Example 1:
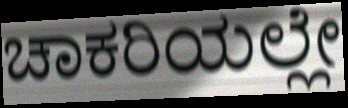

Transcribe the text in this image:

ಚಾಕರಿಯಲ್ಲೇ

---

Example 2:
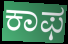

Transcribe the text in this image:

ಕಾಫ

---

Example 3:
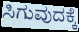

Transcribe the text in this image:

ಸಿಗುವುದಕ್ಕೆ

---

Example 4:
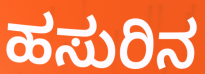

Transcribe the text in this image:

ಹಸುರಿನ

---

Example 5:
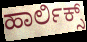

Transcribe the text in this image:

ಹಾರ್ಲಿಕ್ಸ್